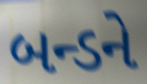
બન્ડને